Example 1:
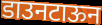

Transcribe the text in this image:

डाउनटाऊन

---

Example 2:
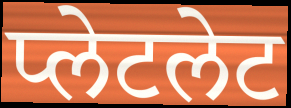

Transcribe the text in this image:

प्लेटलेट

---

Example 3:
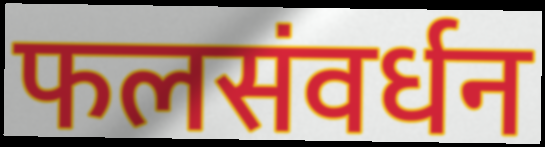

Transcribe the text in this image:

फलसंवर्धन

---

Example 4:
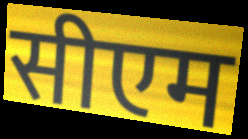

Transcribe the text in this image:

सीएम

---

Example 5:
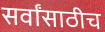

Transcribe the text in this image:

सर्वांसाठीच